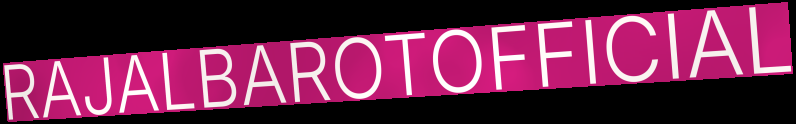
RAJALBAROTOFFICIAL